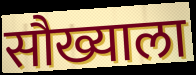
सौख्याला